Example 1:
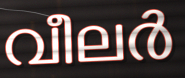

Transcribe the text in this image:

വീലർ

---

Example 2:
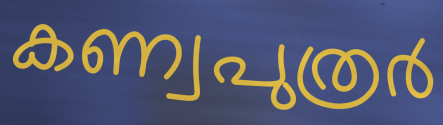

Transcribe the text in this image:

കണ്വപുത്രർ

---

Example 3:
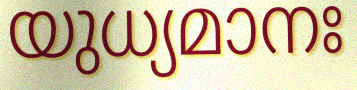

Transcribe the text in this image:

യുധ്യമാനഃ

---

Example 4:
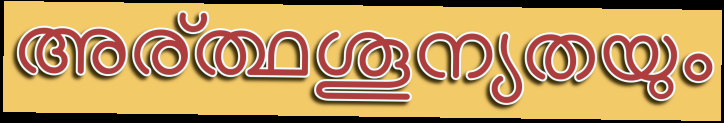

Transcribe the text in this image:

അര്ത്ഥശൂന്യതയും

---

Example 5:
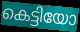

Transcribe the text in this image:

കെട്ടിയോ